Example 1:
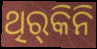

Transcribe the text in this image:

ଥିର୍‍କିନି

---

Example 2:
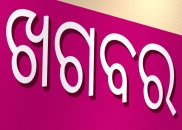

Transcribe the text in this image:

ଖଗବର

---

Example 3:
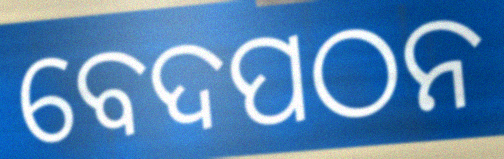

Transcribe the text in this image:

ବେଦପଠନ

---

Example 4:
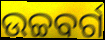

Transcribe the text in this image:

ଉଚ୍ଚବର୍ଗ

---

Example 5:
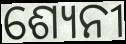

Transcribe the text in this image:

ଶ୍ୟେନୀ